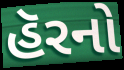
હૅરનો